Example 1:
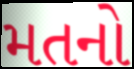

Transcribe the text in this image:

મતનો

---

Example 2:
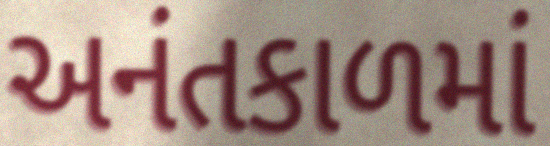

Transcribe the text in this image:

અનંતકાળમાં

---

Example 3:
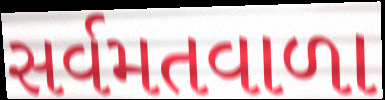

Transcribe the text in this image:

સર્વમતવાળા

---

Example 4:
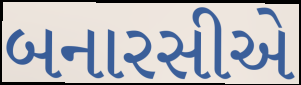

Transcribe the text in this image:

બનારસીએ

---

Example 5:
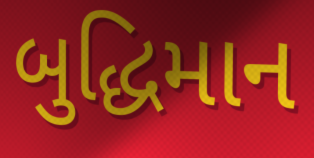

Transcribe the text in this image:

બુદ્ધિમાન